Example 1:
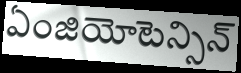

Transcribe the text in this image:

ఏంజియోటెన్సిన్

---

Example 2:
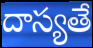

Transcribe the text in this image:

దాస్యతే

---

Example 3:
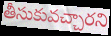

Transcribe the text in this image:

తీసుకువచ్చారని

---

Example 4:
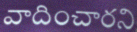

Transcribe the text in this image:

వాదించారని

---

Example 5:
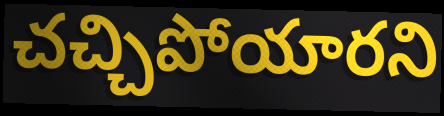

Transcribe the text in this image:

చచ్చిపోయారని